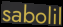
sabolil